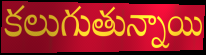
కలుగుతున్నాయి